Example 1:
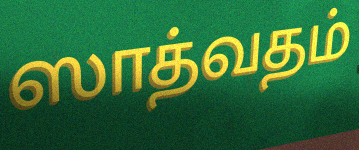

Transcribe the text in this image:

ஸாத்வதம்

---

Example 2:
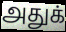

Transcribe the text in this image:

அதுக்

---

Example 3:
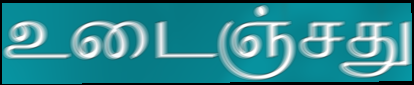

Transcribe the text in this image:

உடைஞ்சது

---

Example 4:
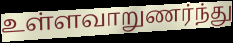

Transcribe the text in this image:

உள்ளவாறுணர்ந்து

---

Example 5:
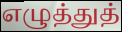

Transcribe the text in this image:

எழுத்துத்